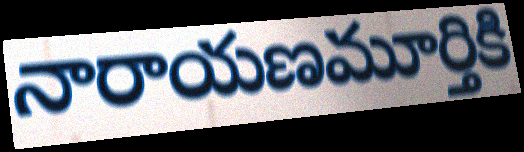
నారాయణమూర్తికి